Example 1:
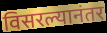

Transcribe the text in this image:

विसरल्यानंतर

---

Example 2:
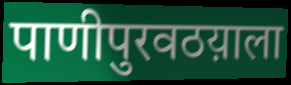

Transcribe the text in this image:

पाणीपुरवठय़ाला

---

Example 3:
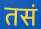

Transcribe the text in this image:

तसं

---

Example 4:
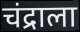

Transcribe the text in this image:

चंद्राला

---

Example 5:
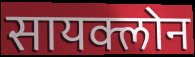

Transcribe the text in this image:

सायक्लोन